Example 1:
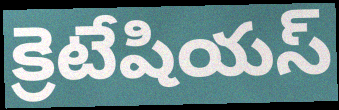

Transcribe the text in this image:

క్రెటేషియస్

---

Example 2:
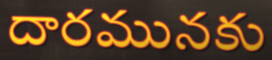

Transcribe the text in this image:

దారమునకు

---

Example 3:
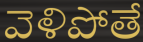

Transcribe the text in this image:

వెళిపోతే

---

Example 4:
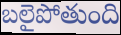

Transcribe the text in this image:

బలైపోతుంది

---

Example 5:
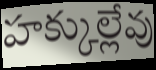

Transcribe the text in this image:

హక్కుల్లేవు